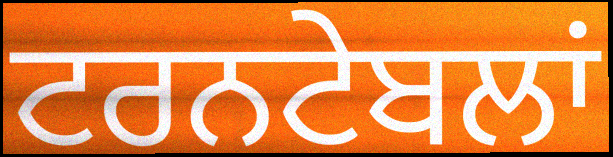
ਟਰਨਟੇਬਲਾਂ